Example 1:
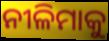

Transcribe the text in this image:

ନୀଳିମାକୁ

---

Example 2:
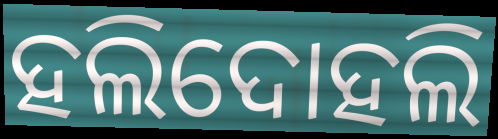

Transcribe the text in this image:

ହଲିଦୋହଲି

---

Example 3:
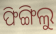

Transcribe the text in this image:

ଫିଙ୍ଗିଲୁ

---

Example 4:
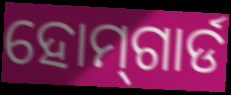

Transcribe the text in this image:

ହୋମ୍‌ଗାର୍ଡ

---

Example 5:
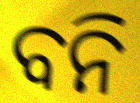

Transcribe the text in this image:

ବନି